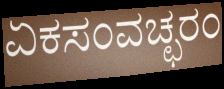
ಏಕಸಂವಚ್ಛರಂ